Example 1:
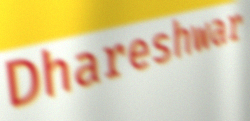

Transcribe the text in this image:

Dhareshwar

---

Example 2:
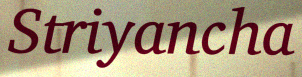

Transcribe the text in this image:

Striyancha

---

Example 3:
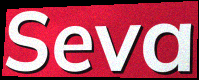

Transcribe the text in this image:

Seva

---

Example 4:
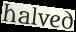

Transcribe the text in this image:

halved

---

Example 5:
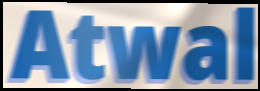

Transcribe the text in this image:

Atwal